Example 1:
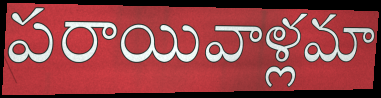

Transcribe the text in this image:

పరాయివాళ్లమా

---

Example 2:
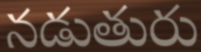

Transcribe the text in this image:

నడుతురు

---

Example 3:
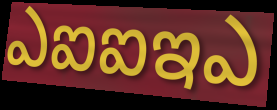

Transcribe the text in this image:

ఎఐఐఇఎ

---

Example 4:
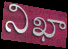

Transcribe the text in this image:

నిఖా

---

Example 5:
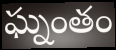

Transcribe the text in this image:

ఘ్నంతం